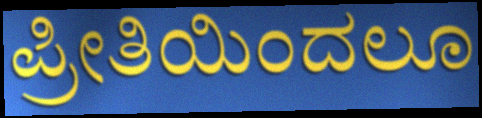
ಪ್ರೀತಿಯಿಂದಲೂ